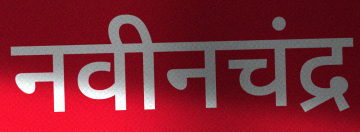
नवीनचंद्र